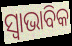
ସ୍ୱାଭାବିକ